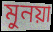
মুনয়া